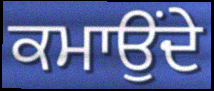
ਕਮਾਉਂਦੇ